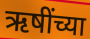
ऋषींच्या